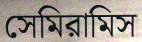
সেমিরামিস